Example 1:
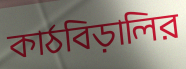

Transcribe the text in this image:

কাঠবিড়ালির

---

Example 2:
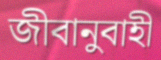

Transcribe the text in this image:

জীবানুবাহী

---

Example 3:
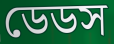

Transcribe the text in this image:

ডেডস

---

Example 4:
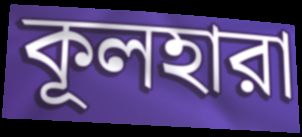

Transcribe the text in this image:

কূলহারা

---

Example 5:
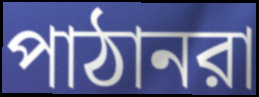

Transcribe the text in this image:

পাঠানরা